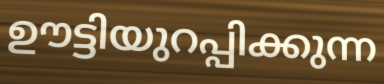
ഊട്ടിയുറപ്പിക്കുന്ന